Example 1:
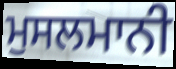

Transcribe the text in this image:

ਮੁਸਲਮਾਨੀ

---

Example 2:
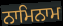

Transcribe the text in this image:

ਨਾਮਿਨਾਮ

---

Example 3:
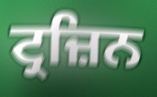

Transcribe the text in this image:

ਟ੍ਰਜ਼ਿਨ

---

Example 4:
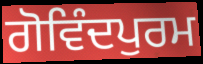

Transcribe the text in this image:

ਗੋਵਿੰਦਪੁਰਮ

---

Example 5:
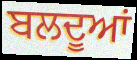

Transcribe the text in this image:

ਬਲਦੂਆਂ